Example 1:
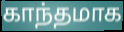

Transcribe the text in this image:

காந்தமாக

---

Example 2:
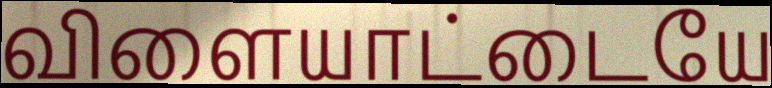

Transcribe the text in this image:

விளையாட்டையே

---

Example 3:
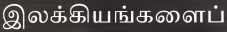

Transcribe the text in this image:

இலக்கியங்களைப்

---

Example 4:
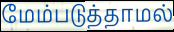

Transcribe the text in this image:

மேம்படுத்தாமல்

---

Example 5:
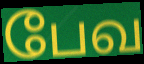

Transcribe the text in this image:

பேவ